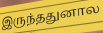
இருந்ததுனால